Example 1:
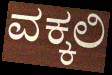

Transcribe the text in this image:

ವಕ್ಕಲಿ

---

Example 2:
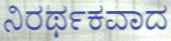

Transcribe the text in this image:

ನಿರರ್ಥಕವಾದ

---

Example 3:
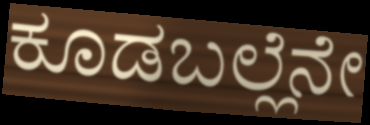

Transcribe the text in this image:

ಕೂಡಬಲ್ಲೆನೇ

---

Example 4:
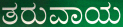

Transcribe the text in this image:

ತರುವಾಯ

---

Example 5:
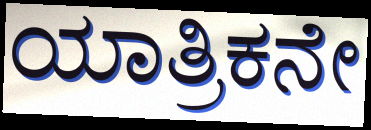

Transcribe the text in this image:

ಯಾತ್ರಿಕನೇ